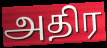
அதிர